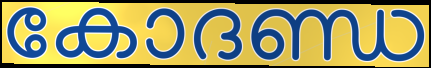
കോദണ്ഡ